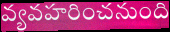
వ్యవహరించనుంది